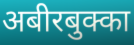
अबीरबुक्का